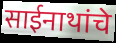
साईनाथांचे